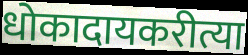
धोकादायकरीत्या